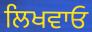
ਲਿਖਵਾਓ